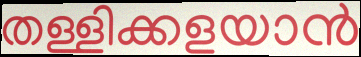
തള്ളിക്കളയാൻ